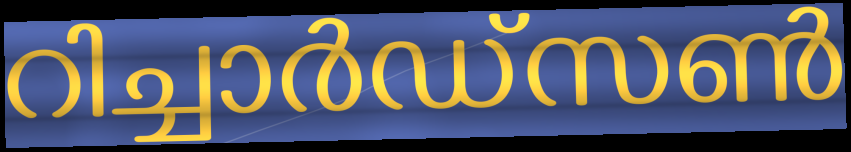
റിച്ചാർഡ്സൺ